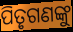
ପିତୃଗଣଙ୍କୁ